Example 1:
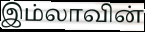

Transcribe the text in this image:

இம்லாவின்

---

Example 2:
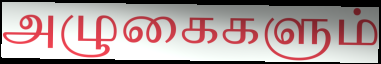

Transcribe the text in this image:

அழுகைகளும்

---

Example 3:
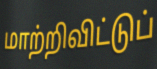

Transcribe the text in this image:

மாற்றிவிட்டுப்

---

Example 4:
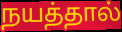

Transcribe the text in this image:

நயத்தால்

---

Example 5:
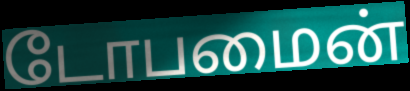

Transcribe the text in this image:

டோபமைன்